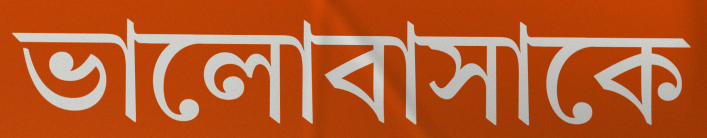
ভালোবাসাকে